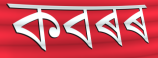
কবৰৰ